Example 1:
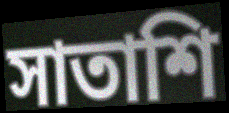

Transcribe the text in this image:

সাতাশি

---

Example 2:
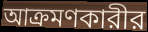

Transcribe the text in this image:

আক্রমণকারীর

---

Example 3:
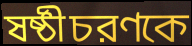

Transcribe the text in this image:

ষষ্ঠীচরণকে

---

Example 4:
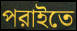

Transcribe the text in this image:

পরাইতে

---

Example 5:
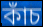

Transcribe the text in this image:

কাঁচ